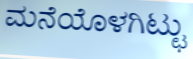
ಮನೆಯೊಳಗಿಟ್ಟು